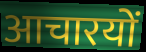
आचारयों